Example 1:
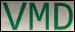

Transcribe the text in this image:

VMD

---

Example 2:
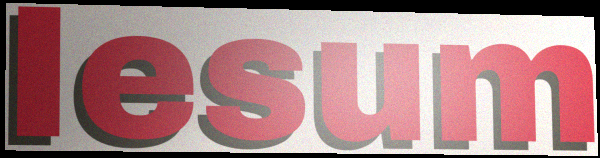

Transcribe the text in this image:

Iesum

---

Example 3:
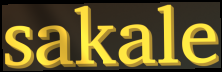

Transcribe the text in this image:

sakale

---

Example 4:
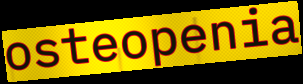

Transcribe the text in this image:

osteopenia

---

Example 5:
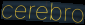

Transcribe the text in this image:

cerebro